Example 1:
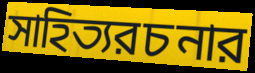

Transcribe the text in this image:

সাহিত্যরচনার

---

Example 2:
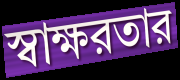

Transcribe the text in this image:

স্বাক্ষরতার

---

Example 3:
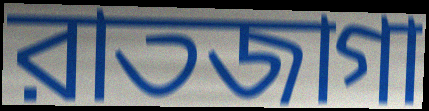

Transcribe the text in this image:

রাতজাগা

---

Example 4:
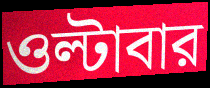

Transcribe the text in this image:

ওল্টাবার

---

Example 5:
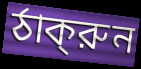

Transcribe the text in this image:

ঠাক্‌রুন